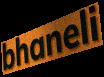
bhaneli